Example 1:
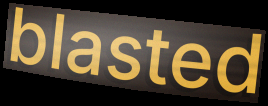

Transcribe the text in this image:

blasted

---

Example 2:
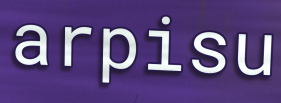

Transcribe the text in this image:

arpisu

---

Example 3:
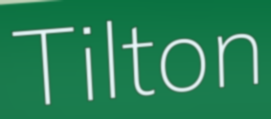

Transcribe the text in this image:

Tilton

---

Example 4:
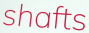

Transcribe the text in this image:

shafts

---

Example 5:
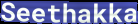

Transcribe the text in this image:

Seethakka